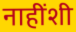
नाहींशी